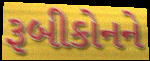
રૂબીકોનને